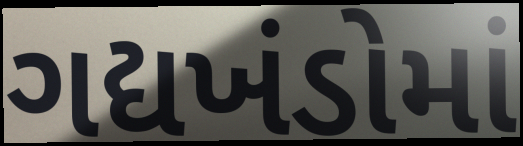
ગદ્યખંડોમાં